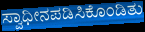
ಸ್ವಾಧೀನಪಡಿಸಿಕೊಂಡಿತು